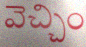
వెచ్చిం